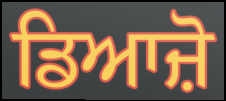
ਡਿਆਜ਼ੋ